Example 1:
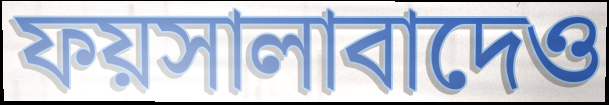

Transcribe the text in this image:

ফয়সালাবাদেও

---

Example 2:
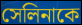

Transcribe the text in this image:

সেলিনাকে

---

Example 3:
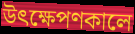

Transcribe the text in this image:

উৎক্ষেপণকালে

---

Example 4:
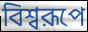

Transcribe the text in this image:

বিশ্বরূপে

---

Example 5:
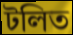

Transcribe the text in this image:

টলিত